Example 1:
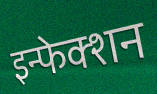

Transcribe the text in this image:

इन्‍फेक्‍शन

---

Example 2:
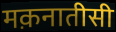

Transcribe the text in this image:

मक़नातीसी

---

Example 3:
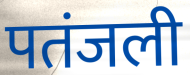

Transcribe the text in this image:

पतंजली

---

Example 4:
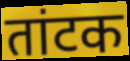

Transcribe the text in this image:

तांटक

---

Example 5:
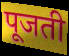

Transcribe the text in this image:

पूजती